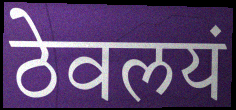
ठेवलयं